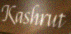
Kashrut